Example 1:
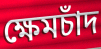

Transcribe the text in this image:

ক্ষেমচাঁদ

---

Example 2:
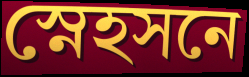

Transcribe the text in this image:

স্নেহসনে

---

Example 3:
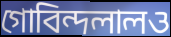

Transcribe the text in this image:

গোবিন্দলালও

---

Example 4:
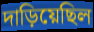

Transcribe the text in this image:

দাড়িয়েছিল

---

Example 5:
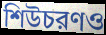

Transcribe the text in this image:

শিউচরণও